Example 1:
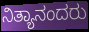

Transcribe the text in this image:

ನಿತ್ಯಾನಂದರು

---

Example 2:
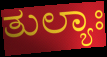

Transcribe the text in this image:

ತುಲ್ಯಾಃ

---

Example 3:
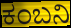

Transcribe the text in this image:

ಕಂಬನಿ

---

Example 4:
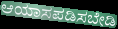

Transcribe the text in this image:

ಆಯಾಸಪಡಿಸಬೇಡಿ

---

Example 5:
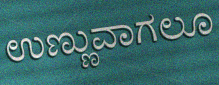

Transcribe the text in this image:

ಉಣ್ಣುವಾಗಲೂ